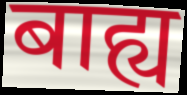
बाह्य